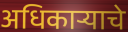
अधिकाऱ्याचे